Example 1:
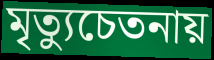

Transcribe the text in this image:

মৃত্যুচেতনায়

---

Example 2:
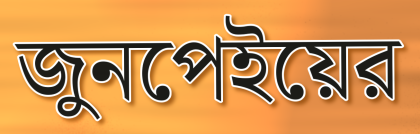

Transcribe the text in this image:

জুনপেইয়ের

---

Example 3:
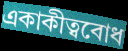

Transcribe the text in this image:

একাকীত্ববোধ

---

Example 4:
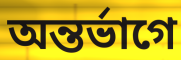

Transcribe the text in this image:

অন্তর্ভাগে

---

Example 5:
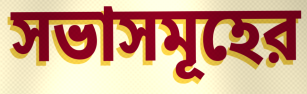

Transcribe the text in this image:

সভাসমূহের